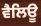
ਵੈਲਿਊ